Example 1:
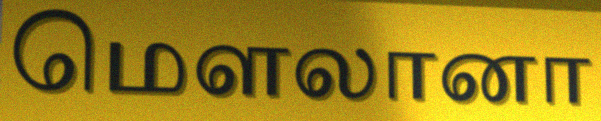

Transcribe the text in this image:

மௌலானா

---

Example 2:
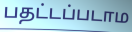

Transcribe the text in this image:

பதட்டப்படாம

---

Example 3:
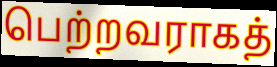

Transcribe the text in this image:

பெற்றவராகத்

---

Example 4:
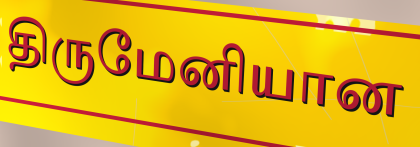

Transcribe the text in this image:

திருமேனியான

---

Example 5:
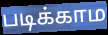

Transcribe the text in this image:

படிக்காம